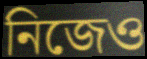
নিজেও